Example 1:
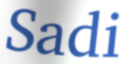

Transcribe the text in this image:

Sadi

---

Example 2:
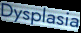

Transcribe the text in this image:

Dysplasia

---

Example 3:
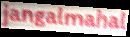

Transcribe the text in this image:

jangalmahal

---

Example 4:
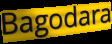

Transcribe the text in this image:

Bagodara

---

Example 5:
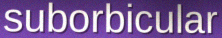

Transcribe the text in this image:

suborbicular